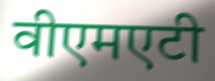
वीएमएटी